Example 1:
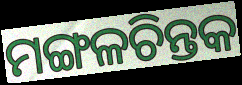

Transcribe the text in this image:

ମଙ୍ଗଳଚିନ୍ତକ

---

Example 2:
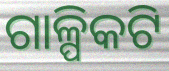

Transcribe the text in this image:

ଗାଳ୍ପିକଟି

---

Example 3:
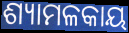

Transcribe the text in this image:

ଶ୍ୟାମଳକାୟ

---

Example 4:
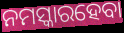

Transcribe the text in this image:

ନମସ୍କାରହେବା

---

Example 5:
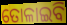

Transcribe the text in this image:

ତୋଳାଇବି